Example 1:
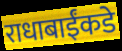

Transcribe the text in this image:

राधाबाईंकडे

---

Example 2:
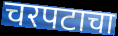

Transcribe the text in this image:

चरपटाचा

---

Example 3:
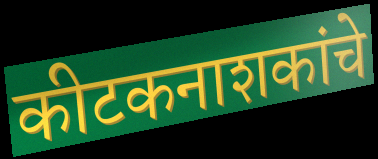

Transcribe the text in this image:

कीटकनाशकांचे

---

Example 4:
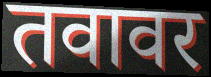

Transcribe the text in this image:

तवावर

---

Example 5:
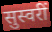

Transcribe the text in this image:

सुस्वरीं